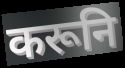
करूनि